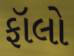
ફૉલો